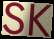
SK